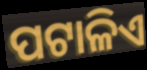
ପଟାଳିଏ